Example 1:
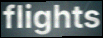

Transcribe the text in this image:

flights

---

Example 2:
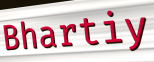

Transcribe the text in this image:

Bhartiy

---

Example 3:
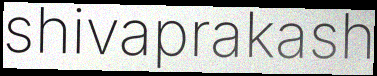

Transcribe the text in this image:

shivaprakash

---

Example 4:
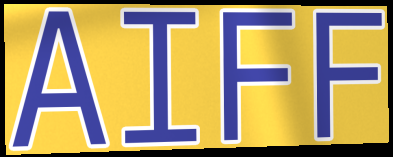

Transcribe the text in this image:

AIFF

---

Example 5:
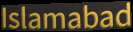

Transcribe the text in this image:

Islamabad